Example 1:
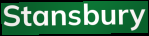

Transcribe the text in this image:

Stansbury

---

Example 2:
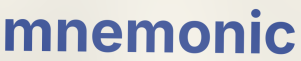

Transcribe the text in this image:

mnemonic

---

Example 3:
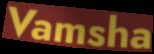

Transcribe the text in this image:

Vamsha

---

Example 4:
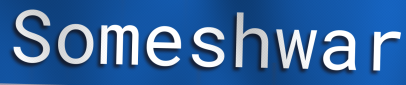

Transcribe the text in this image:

Someshwar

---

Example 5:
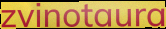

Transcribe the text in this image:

zvinotaura